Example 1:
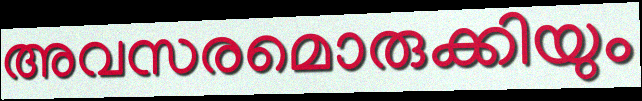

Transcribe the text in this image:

അവസരമൊരുക്കിയും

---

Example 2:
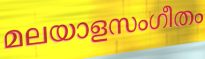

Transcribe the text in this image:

മലയാളസംഗീതം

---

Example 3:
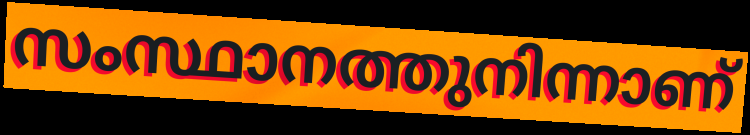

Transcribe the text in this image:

സംസ്ഥാനത്തുനിന്നാണ്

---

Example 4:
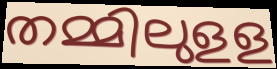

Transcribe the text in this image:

തമ്മിലുളള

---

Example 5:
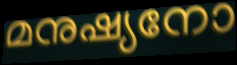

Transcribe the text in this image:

മനുഷ്യനോ